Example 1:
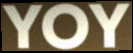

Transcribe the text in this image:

YOY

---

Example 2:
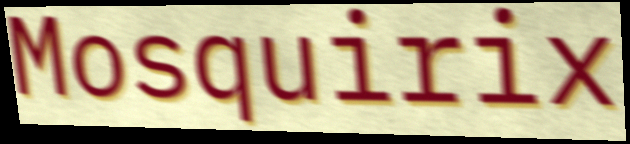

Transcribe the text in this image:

Mosquirix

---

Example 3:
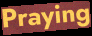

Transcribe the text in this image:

Praying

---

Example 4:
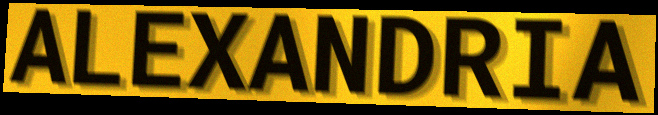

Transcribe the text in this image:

ALEXANDRIA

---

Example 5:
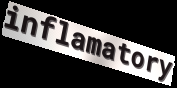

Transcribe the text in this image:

inflamatory